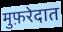
मुफ़रेदात